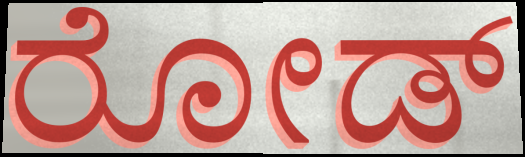
ರೋಡ್